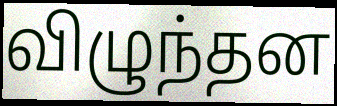
விழுந்தன